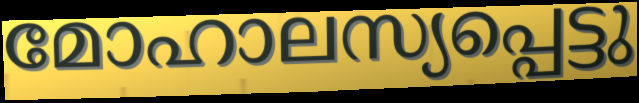
മോഹാലസ്യപ്പെട്ടു